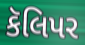
કૅલિપર